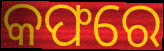
କଫରେ